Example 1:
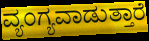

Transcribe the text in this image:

ವ್ಯಂಗ್ಯವಾಡುತ್ತಾರೆ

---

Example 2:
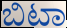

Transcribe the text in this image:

ಬಿಟಾ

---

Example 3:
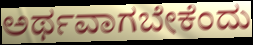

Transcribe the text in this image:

ಅರ್ಥವಾಗಬೇಕೆಂದು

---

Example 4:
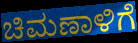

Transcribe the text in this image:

ಚಿಮಣಾಳಿಗೆ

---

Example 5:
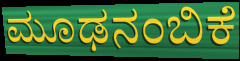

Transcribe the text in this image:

ಮೂಢನಂಬಿಕೆ